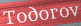
Todorov